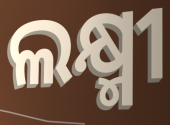
ଲକ୍ଷ୍ମୀ